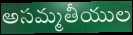
అసమ్మతీయుల